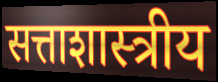
सत्ताशास्त्रीय